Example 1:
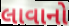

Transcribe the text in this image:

લાવાનો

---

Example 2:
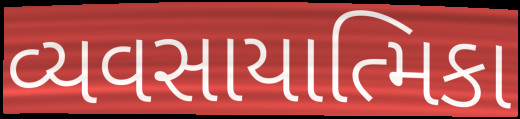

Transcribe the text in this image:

વ્યવસાયાત્મિકા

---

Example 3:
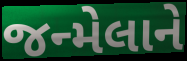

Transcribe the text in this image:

જન્મેલાને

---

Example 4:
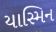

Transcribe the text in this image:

યાસ્મિન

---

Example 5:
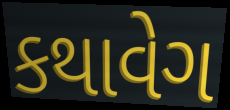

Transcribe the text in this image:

કથાવેગ